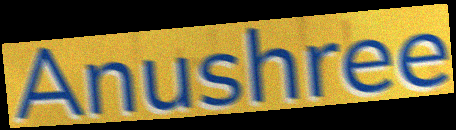
Anushree